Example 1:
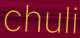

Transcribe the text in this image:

chuli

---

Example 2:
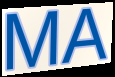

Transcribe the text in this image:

MA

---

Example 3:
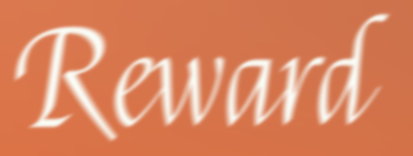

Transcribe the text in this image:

Reward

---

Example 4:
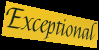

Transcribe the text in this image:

Exceptional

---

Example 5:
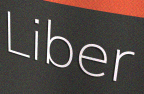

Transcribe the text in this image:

Liber